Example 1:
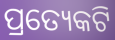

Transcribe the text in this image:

ପ୍ରତ୍ୟେକଟି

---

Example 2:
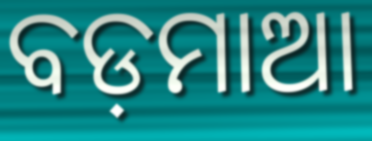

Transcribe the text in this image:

ବଡ଼ମାଆ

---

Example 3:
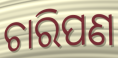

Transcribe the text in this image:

ଚାରିପଣ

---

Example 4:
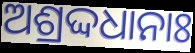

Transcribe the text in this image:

ଅଶ୍ରଦ୍ଦଧାନାଃ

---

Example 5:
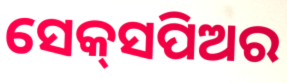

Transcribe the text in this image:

ସେକ୍‌ସପିଅର